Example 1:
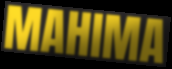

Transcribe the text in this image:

MAHIMA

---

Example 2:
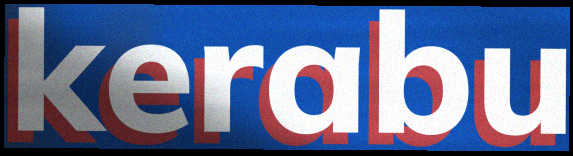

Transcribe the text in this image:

kerabu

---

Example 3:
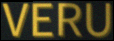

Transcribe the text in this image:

VERU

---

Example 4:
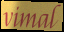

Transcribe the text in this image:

vimal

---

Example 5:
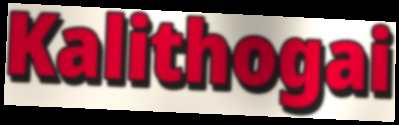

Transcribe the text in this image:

Kalithogai